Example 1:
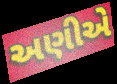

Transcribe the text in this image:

અણીએ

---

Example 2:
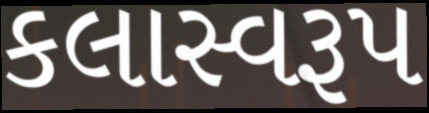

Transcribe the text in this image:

કલાસ્વરૂપ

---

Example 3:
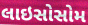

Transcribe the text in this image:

લાઇસોસોમ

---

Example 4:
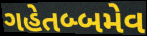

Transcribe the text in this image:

ગહેતબ્બમેવ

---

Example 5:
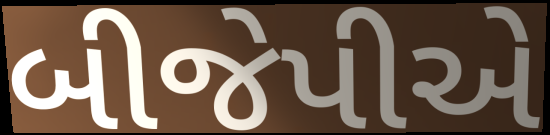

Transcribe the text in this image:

બીજેપીએ